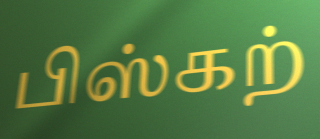
பிஸ்கற்